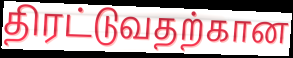
திரட்டுவதற்கான